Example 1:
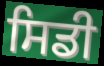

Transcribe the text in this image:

ਸਿਡੀ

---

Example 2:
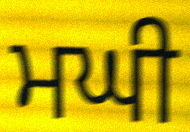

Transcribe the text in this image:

ਮਘੀ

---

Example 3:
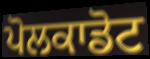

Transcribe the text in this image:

ਪੋਲਕਾਡੋਟ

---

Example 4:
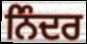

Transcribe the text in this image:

ਨਿੰਦਰ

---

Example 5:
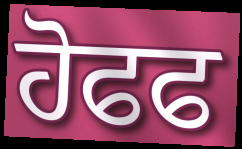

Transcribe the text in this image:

ਹੋਫਫ